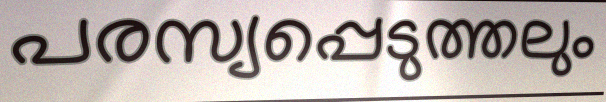
പരസ്യപ്പെടുത്തലും